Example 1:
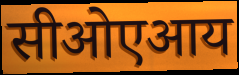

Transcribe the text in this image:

सीओएआय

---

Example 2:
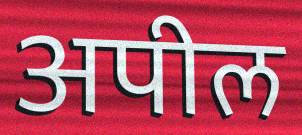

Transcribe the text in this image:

अपील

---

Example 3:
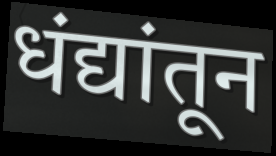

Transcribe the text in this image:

धंद्यांतून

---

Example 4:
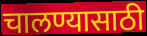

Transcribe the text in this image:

चालण्यासाठी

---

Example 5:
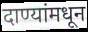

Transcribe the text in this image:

दाण्यांमधून